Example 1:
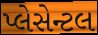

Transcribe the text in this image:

પ્લેસેન્ટલ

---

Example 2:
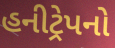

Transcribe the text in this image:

હનીટ્રેપનો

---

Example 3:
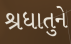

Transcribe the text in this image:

શ્રધાતુને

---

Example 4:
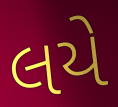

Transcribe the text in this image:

લયે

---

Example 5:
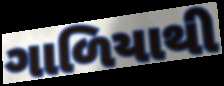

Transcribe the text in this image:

ગાળિયાથી